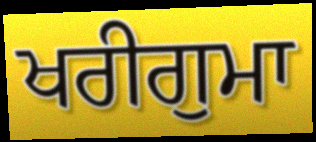
ਖਰੀਗੁਮਾ